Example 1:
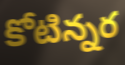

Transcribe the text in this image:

కోటిన్నర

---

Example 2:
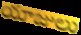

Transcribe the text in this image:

యాజులు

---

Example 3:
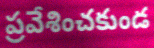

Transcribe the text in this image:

ప్రవేశించకుండ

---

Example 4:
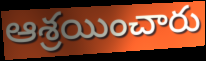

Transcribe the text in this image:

ఆశ్రయించారు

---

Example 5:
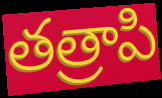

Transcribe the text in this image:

తత్రాపి